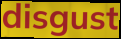
disgust